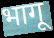
भागू